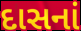
દાસનાં